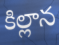
కిల్లాన